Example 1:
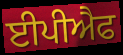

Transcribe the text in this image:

ਈਪੀਐਫ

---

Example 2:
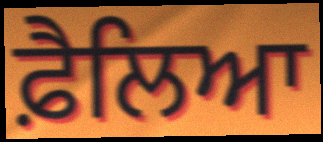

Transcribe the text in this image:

ਫ਼ੈਲਿਆ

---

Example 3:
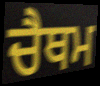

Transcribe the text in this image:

ਚੈਥਮ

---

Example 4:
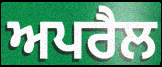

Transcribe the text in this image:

ਅਪਰੈਲ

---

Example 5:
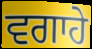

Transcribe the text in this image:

ਵਗਾਹੇ